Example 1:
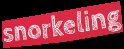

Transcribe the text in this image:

snorkeling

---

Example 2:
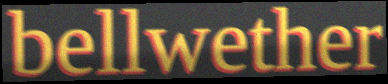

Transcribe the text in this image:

bellwether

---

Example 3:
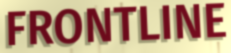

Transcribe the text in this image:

FRONTLINE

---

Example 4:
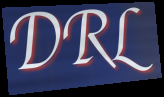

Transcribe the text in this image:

DRL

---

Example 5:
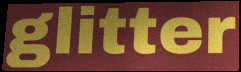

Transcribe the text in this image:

glitter